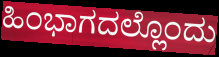
ಹಿಂಭಾಗದಲ್ಲೊಂದು